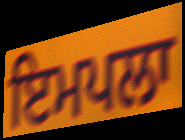
ਇਮਪਲਾ